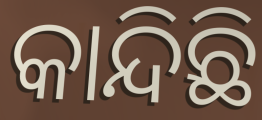
କାନ୍ଦିଛି